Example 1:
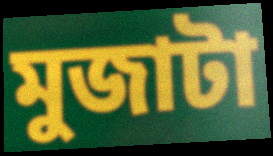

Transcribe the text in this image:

মুজাটা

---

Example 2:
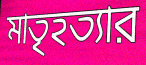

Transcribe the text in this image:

মাতৃহত্যার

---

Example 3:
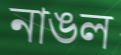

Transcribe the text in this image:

নাঙল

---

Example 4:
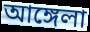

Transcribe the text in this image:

আঙ্গেলা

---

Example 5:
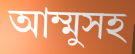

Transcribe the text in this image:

আম্মুসহ